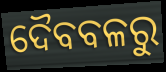
ଦୈବବଳରୁ